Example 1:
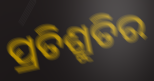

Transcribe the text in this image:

ପ୍ରତିଶ୍ରୁତିର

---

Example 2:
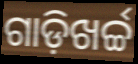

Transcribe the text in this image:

ଗାଡ଼ିଖର୍ଚ୍ଚ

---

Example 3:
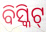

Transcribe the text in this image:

ବିସ୍କିଟ୍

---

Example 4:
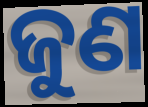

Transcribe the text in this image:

ଜୁଣ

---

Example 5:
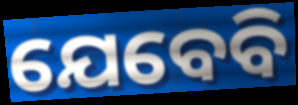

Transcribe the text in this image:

ଯେବେବି